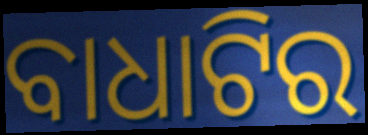
ବାଧାଟିର